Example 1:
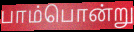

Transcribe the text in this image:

பாம்பொன்று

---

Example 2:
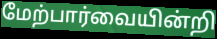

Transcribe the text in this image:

மேற்பார்வையின்றி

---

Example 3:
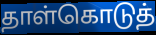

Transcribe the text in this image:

தாள்கொடுத்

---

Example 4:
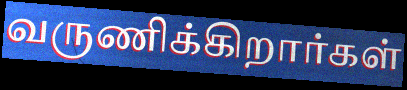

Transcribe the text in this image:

வருணிக்கிறார்கள்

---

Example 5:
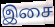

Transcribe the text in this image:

இசை